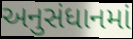
અનુસંધાનમાં